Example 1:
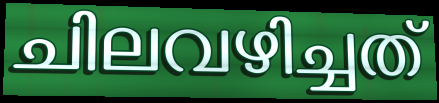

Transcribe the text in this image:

ചിലവഴിച്ചത്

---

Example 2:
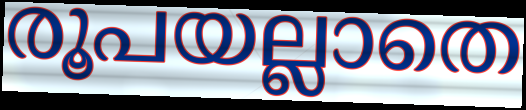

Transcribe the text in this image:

രൂപയല്ലാതെ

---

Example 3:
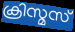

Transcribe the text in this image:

ക്രിസ്മസ്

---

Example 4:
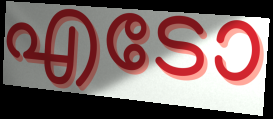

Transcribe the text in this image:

എടോ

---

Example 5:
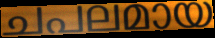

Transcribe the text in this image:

ചപലമായ